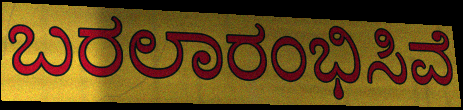
ಬರಲಾರಂಭಿಸಿವೆ